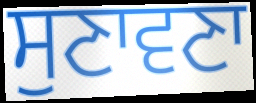
ਸੁਣਾਵਣਾ